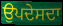
ਉਪਦੇਸਦਾ